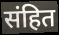
संहित